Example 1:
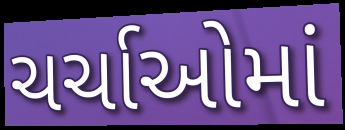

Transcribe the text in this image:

ચર્ચાઓમાં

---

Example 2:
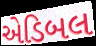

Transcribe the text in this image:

એડિબલ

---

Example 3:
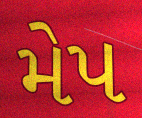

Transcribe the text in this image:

મેપ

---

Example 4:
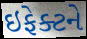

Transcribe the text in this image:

ઇફેક્ટને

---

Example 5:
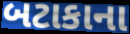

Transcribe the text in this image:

બટાકાના